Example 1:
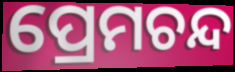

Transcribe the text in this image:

ପ୍ରେମଚନ୍ଦ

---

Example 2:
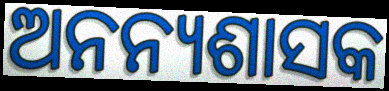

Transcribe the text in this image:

ଅନନ୍ୟଶାସକ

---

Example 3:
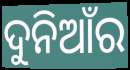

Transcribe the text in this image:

ଦୁନିଆଁର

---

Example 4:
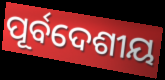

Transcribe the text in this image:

ପୂର୍ବଦେଶୀୟ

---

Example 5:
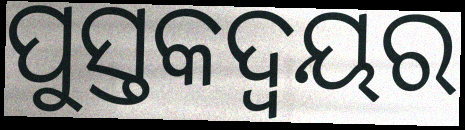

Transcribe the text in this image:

ପୁସ୍ତକଦ୍ୱୟର